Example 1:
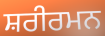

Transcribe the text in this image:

ਸ਼ਰੀਰਮਨ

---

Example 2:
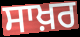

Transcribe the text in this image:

ਸਾਖ਼ਰ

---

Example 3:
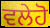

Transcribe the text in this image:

ਵਲੇਹੋ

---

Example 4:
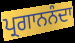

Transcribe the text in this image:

ਪ੍ਰਗਾਨਨੰਦਾ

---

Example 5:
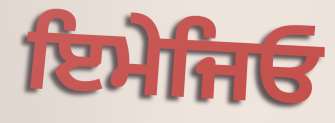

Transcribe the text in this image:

ਇਮੇਜਿਓ